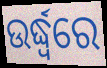
ଉର୍ଦ୍ଧ୍ଵରେ